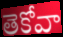
తెకోవా